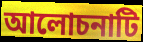
আলোচনাটি